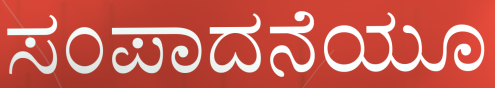
ಸಂಪಾದನೆಯೂ